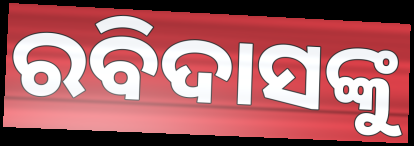
ରବିଦାସଙ୍କୁ